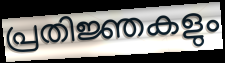
പ്രതിജ്ഞകളും